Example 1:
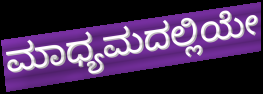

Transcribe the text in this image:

ಮಾಧ್ಯಮದಲ್ಲಿಯೇ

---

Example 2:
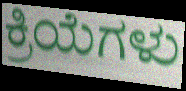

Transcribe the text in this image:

ಕ್ರಿಯೆಗಳು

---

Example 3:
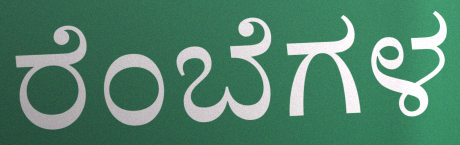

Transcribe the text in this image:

ರೆಂಬೆಗಳ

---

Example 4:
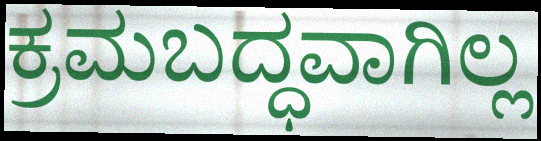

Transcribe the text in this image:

ಕ್ರಮಬದ್ಧವಾಗಿಲ್ಲ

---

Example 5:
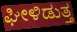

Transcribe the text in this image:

ಘೀಳಿಡುತ್ತ